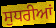
ਸੁਧਰੀਆਂ